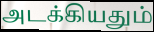
அடக்கியதும்